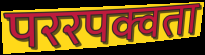
पररपक्वता